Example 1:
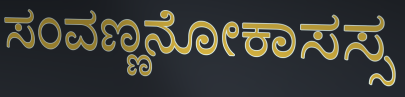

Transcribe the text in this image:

ಸಂವಣ್ಣನೋಕಾಸಸ್ಸ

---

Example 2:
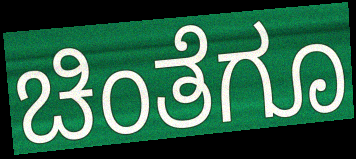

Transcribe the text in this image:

ಚಿಂತೆಗೂ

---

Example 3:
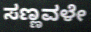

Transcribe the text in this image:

ಸಣ್ಣವಳೇ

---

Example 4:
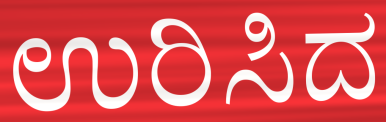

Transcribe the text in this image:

ಉರಿಸಿದ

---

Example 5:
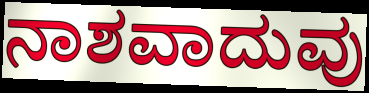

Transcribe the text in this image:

ನಾಶವಾದುವು